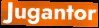
Jugantor